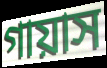
গায়াস